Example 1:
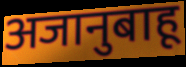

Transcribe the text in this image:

अजानुबाहू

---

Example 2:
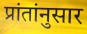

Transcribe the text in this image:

प्रांतांनुसार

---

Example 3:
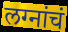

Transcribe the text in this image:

लग्नांचं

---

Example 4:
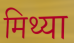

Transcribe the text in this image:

मिथ्या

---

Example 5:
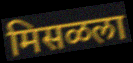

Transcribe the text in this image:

मिसळला